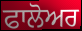
ਫਾਲੋਅਰ